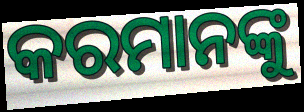
କରମାନଙ୍କୁ